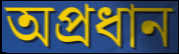
অপ্রধান